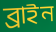
ব্রাইন